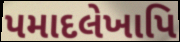
પમાદલેખાપિ